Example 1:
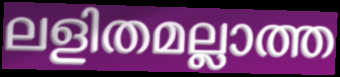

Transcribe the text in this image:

ലളിതമല്ലാത്ത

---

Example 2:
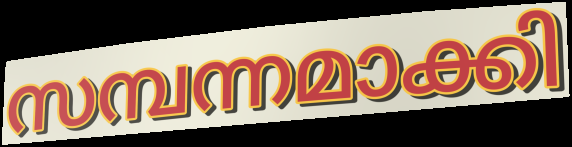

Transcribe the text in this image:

സമ്പന്നമാക്കി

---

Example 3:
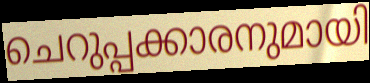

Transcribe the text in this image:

ചെറുപ്പക്കാരനുമായി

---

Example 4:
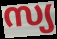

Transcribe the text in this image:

സ്യ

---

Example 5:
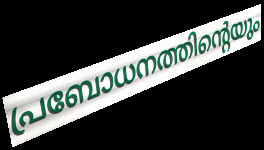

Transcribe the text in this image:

പ്രബോധനത്തിന്റെയും